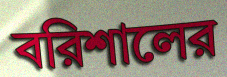
বরিশালের